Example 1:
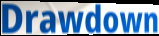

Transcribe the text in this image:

Drawdown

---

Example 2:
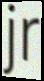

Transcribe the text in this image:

jr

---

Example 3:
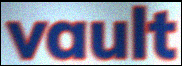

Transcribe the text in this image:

vault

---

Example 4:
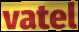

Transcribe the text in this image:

vatel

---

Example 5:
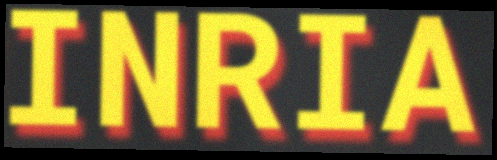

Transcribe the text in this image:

INRIA